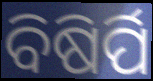
ବିଷିର୍ପି